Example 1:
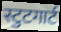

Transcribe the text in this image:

स्टुटगार्ट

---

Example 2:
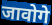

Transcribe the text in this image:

जावोगे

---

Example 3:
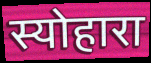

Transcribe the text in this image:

स्योहारा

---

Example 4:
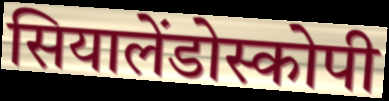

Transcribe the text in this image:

सियालेंडोस्कोपी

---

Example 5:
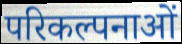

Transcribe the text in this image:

परिकल्पनाओं